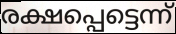
രക്ഷപ്പെട്ടെന്ന്